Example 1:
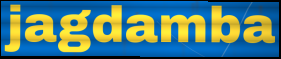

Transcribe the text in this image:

jagdamba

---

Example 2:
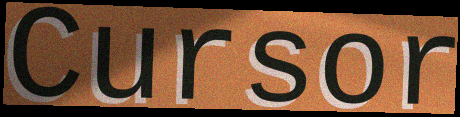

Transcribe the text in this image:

Cursor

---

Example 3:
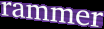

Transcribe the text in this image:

rammer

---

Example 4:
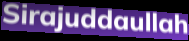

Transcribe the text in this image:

Sirajuddaullah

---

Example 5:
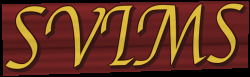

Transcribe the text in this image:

SVIMS